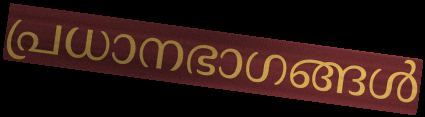
പ്രധാനഭാഗങ്ങൾ